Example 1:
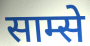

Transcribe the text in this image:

साम्से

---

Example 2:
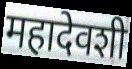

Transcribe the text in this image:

महादेवशी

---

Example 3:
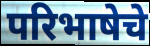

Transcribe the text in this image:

परिभाषेचे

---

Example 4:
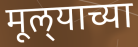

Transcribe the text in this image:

मूल्याच्या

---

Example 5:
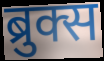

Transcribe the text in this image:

ब्रुक्‍स